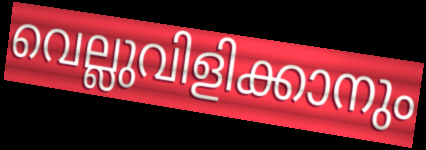
വെല്ലുവിളിക്കാനും